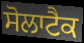
ਸੋਲਾਟੈਕ